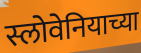
स्लोवेनियाच्या